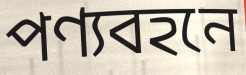
পণ্যবহনে